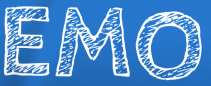
EMO